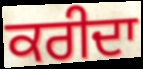
ਕਰੀਦਾ